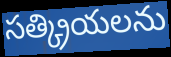
సత్క్రియలను